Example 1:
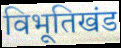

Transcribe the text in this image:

विभूतिखंड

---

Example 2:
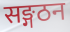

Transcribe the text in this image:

सङ्गठन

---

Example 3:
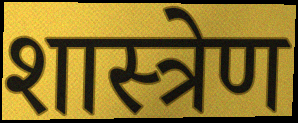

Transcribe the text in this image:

शास्त्रेण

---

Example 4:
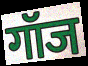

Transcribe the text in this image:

गॉज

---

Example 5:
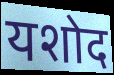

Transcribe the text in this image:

यशोद